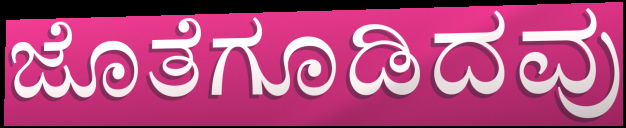
ಜೊತೆಗೂಡಿದವು